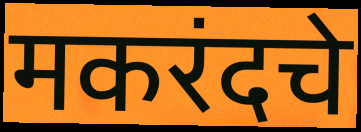
मकरंदचे